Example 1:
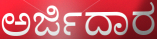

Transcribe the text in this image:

ಅರ್ಜಿದಾರ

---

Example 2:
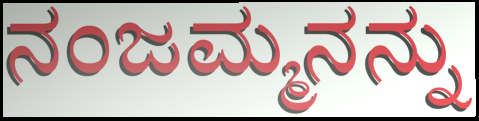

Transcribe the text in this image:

ನಂಜಮ್ಮನನ್ನು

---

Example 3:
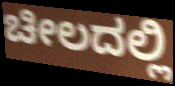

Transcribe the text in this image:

ಚೀಲದಲ್ಲಿ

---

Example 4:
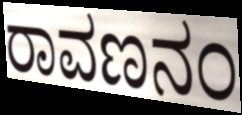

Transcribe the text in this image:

ರಾವಣನಂ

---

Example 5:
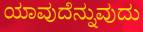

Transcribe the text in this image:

ಯಾವುದೆನ್ನುವುದು